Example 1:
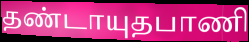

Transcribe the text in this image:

தண்டாயுதபாணி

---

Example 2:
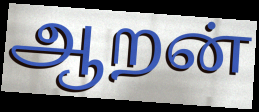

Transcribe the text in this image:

ஆறன்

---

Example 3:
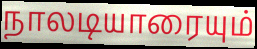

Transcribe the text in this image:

நாலடியாரையும்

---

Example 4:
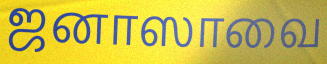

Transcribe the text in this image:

ஜனாஸாவை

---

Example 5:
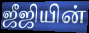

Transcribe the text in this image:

ஜீஜியின்